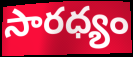
సారధ్యం